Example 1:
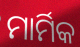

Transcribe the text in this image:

ମାର୍ମିକ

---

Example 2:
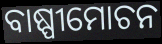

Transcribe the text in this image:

ବାଷ୍ପୀମୋଚନ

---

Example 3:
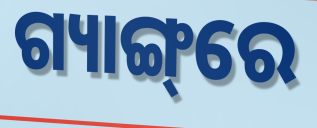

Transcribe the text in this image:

ଗ୍ୟାଙ୍ଗ୍‌ରେ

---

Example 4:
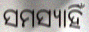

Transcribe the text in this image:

ସମସ୍ୟାହିଁ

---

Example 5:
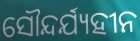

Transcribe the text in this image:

ସୌନ୍ଦର୍ଯ୍ୟହୀନ